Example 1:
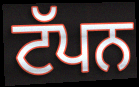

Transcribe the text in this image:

ਟੱਪਨ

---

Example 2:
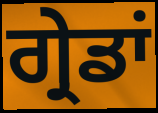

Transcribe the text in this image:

ਗ੍ਰੇਡਾਂ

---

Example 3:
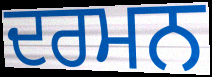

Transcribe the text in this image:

ਦਰਮਨ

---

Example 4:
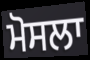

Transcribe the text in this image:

ਮੋਸਲਾ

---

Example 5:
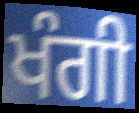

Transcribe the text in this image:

ਖੰਗੀ